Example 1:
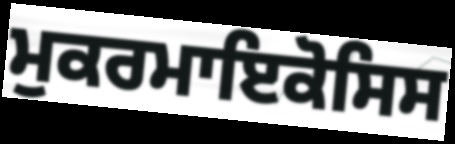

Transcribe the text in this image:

ਮੁਕਰਮਾਇਕੋਸਿਸ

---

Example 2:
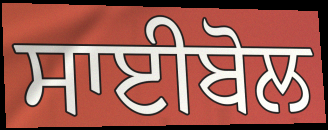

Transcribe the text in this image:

ਸਾਈਬੋਲ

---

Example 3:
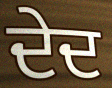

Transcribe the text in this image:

ਦੇਦ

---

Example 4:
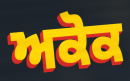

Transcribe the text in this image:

ਅਕੋਕ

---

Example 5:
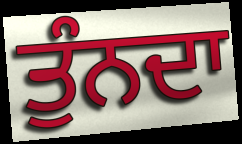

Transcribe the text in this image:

ਤੁੰਨਦਾ